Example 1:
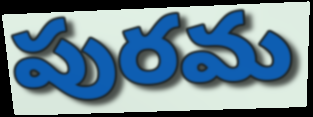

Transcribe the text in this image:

పురమ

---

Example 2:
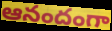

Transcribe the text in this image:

ఆనందంగా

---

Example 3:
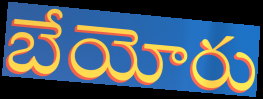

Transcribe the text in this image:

బేయోరు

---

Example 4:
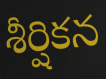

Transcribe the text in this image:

శీర్షికన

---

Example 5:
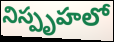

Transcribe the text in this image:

నిస్పృహలో